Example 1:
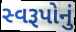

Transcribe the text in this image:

સ્વરૂપોનું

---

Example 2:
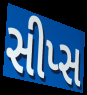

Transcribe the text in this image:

સીપ્સ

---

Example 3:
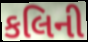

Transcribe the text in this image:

કલિની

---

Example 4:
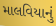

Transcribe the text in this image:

માલવિયાનું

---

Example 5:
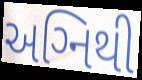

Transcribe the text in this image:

અગ્‍નિથી